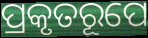
ପ୍ରକୃତରୂପେ